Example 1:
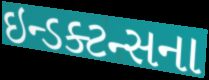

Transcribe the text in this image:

ઇન્ડક્ટન્સના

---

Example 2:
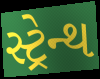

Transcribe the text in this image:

સ્ટ્રેન્થ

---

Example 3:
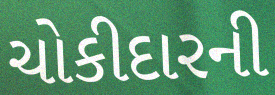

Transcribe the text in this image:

ચોકીદારની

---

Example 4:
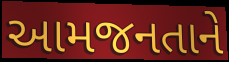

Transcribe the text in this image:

આમજનતાને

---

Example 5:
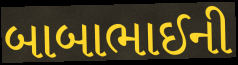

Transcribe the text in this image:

બાબાભાઈની